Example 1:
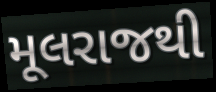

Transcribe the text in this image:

મૂલરાજથી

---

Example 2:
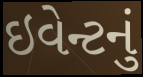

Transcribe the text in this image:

ઇવેન્ટનું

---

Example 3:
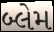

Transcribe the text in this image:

બ્લેમ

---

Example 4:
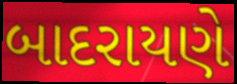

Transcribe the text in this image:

બાદરાયણે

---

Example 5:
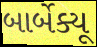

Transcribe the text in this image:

બાર્બેક્યૂ